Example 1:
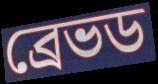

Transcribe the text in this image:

ব্রেভড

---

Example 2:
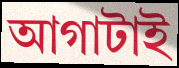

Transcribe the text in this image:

আগাটাই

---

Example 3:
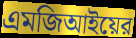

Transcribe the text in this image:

এমজিআইয়ের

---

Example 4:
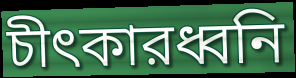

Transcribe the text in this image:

চীৎকারধ্বনি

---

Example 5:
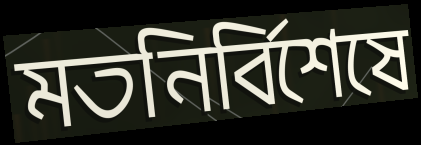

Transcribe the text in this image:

মতনির্বিশেষে